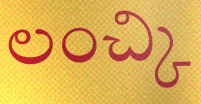
లంచ్కి